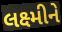
લક્ષ્મીને